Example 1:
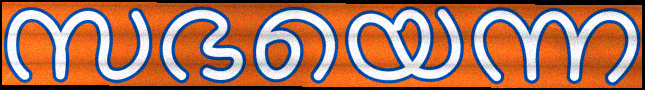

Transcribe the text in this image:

സഭയെന്ന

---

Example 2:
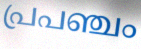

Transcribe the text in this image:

പ്രപഞ്ചം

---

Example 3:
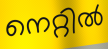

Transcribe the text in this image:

നെറ്റിൽ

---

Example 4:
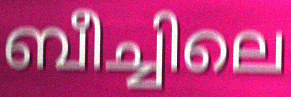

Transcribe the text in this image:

ബീച്ചിലെ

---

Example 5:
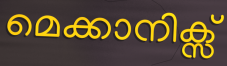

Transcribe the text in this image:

മെക്കാനിക്സ്